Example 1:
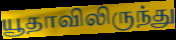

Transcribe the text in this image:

யூதாவிலிருந்து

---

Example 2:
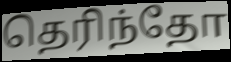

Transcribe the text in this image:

தெரிந்தோ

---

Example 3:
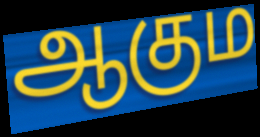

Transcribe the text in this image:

ஆகும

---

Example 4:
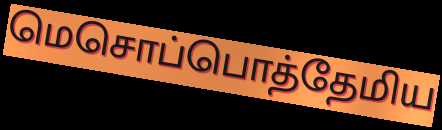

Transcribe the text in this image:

மெசொப்பொத்தேமிய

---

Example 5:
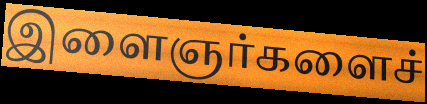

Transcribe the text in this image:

இளைஞர்களைச்